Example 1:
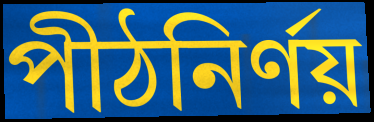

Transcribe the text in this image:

পীঠনির্ণয়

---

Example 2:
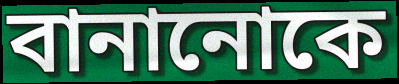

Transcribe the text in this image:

বানানোকে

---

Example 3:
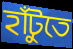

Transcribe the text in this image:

হাঁটুতে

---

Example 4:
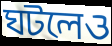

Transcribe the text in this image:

ঘটলেও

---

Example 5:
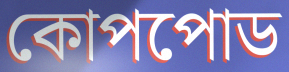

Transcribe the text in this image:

কোপপোড